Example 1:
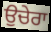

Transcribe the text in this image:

ਉਚੇਰਾ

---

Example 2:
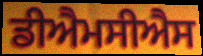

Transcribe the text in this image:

ਡੀਐਮਸੀਐਸ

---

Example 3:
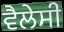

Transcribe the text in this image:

ਵੈਲੇਸੀ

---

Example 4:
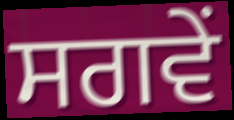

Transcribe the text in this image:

ਸਗਵੇਂ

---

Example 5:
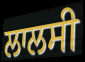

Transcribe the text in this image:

ਲਾਲਸੀ